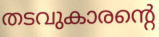
തടവുകാരന്റെ